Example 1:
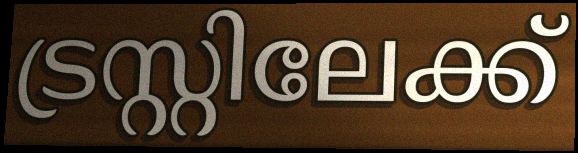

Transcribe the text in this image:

ട്രസ്റ്റിലേക്ക്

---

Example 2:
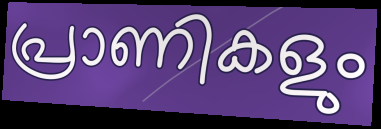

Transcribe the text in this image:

പ്രാണികളും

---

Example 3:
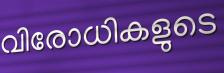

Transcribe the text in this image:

വിരോധികളുടെ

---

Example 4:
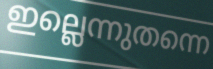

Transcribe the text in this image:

ഇല്ലെന്നുതന്നെ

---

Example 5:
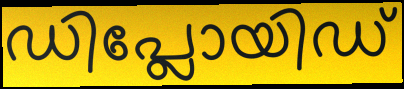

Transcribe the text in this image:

ഡിപ്ലോയിഡ്